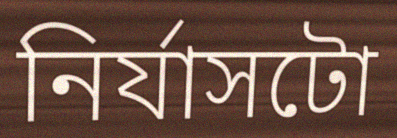
নিৰ্যাসটো